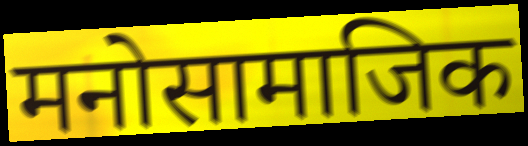
मनोसामाजिक